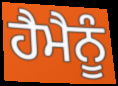
ਹੈਮੈਨੂੰ